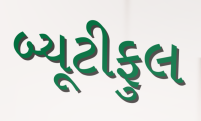
બ્યૂટીફુલ